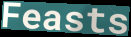
Feasts